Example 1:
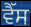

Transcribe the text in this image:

ਵੈੱਸ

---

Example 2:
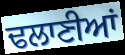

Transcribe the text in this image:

ਢਲਾਣੀਆਂ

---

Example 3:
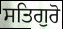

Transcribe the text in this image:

ਸਤਿਗੁਰੋ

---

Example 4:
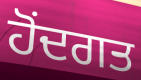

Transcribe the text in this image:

ਹੋਂਦਗਤ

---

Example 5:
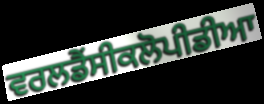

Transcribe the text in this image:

ਵਰਲਡੈਂਸੀਕਲੋਪੀਡੀਆ